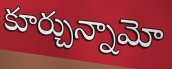
కూర్చున్నామో